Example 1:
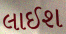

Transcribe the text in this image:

લાઈશ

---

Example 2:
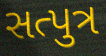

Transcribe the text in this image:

સત્પુત્ર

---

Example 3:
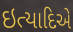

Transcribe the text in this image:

ઇત્યાદિએ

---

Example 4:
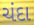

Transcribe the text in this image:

ચંદા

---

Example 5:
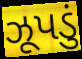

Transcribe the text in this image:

ઝૂપડું